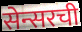
सेन्सरची